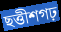
ছত্তীশগঢ়